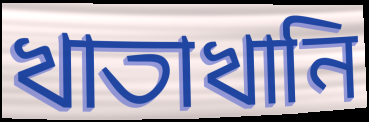
খাতাখানি